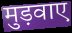
मुड़वाए